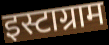
इस्टाग्राम